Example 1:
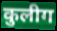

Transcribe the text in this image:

कुलीग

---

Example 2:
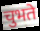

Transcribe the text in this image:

चुभते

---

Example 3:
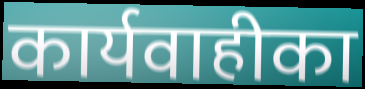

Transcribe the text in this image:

कार्यवाहीका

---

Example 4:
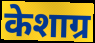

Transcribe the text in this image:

केशाग्र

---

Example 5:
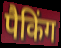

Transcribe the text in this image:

पैकिंग